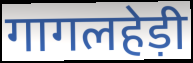
गागलहेड़ी